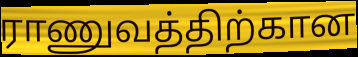
ராணுவத்திற்கான